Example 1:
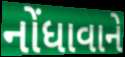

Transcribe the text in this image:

નોંધાવાને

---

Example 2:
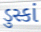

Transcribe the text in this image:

ડુસ્કાં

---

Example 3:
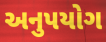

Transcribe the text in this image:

અનુપયોગ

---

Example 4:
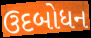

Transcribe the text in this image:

ઉદબોધન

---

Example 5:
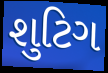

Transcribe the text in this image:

શુટિગ